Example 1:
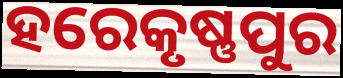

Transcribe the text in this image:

ହରେକୃଷ୍ଣପୁର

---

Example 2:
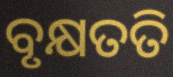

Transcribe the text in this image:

ବୃକ୍ଷତତି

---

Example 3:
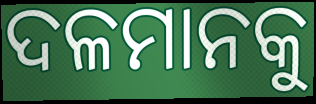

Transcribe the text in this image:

ଦଳମାନକୁ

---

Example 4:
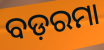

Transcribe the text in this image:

ବଡ଼ରମା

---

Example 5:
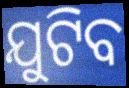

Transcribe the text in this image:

ଯୁଟିବ